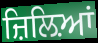
ਜ਼ਿਲ਼ਿਆਂ